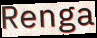
Renga